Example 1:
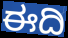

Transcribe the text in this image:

ಈದಿ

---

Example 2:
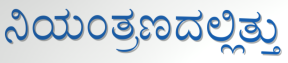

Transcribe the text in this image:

ನಿಯಂತ್ರಣದಲ್ಲಿತ್ತು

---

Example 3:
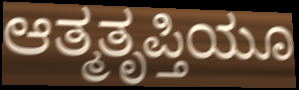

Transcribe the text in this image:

ಆತ್ಮತೃಪ್ತಿಯೂ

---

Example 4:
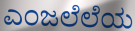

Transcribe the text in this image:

ಎಂಜಲೆಲೆಯ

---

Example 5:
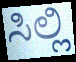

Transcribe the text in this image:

ಸಿಲ್ಲಿ